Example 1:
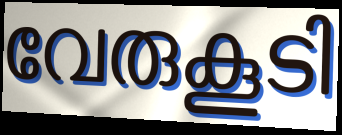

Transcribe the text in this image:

വേരുകൂടി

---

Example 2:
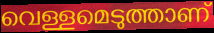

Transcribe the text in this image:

വെള്ളമെടുത്താണ്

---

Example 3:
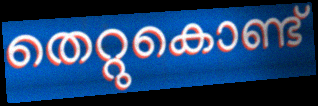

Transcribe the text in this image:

തെറ്റുകൊണ്ട്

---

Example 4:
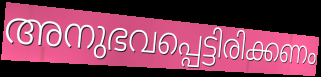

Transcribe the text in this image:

അനുഭവപ്പെട്ടിരിക്കണം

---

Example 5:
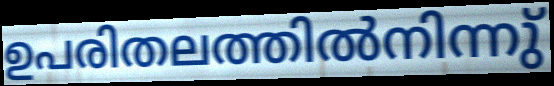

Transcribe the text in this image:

ഉപരിതലത്തിൽനിന്നു്